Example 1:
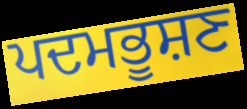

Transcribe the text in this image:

ਪਦਮਭੂਸ਼ਣ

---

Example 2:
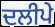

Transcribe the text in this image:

ਦਲੀਪੇ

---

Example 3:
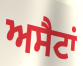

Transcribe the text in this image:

ਅਸੈਟਾਂ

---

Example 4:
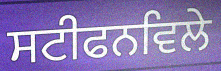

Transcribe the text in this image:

ਸਟੀਫਨਵਿਲੇ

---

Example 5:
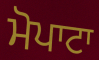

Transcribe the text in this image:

ਮੋਪਾਟਾ